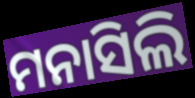
ମନାସିଲି